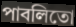
পাবলিতো